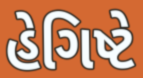
હેગિષ્ટે